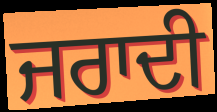
ਜਰਾਦੀ